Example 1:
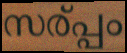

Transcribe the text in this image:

സര്പ്പം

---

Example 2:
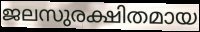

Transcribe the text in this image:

ജലസുരക്ഷിതമായ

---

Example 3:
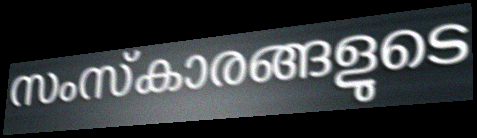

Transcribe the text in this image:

സംസ്‌കാരങ്ങളുടെ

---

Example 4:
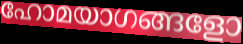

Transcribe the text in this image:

ഹോമയാഗങ്ങളോ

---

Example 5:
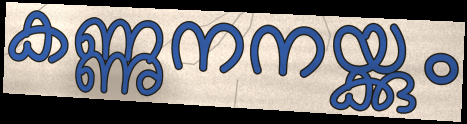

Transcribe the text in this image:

കണ്ണുനനയ്ക്കും